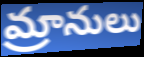
మ్రానులు